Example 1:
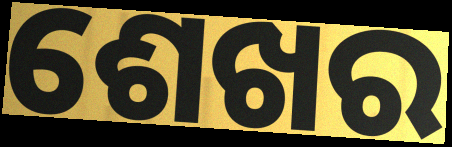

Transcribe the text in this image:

ଶେଖର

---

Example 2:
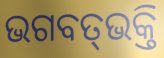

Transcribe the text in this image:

ଭଗବତ୍‌ଭକ୍ତି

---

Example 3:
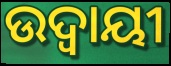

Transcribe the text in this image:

ଉଦ୍ବାୟୀ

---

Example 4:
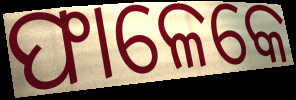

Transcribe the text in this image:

ଫାଳେକେ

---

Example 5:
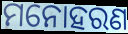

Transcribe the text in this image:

ମନୋହରଣ